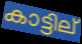
കാട്ടില്